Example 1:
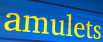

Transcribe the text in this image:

amulets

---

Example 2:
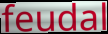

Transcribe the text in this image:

feudal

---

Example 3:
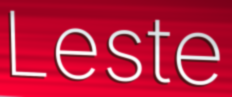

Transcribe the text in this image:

Leste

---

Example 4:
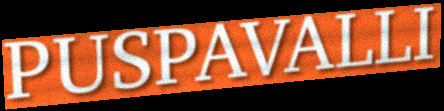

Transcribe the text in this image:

PUSPAVALLI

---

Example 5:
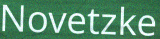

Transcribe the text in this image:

Novetzke